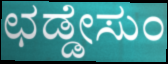
ಛಡ್ಡೇಸುಂ